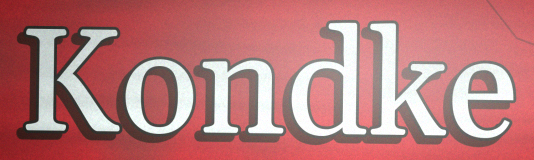
Kondke